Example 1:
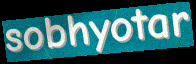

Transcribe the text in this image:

sobhyotar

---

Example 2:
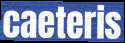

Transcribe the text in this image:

caeteris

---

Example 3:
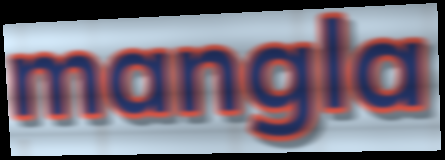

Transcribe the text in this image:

mangla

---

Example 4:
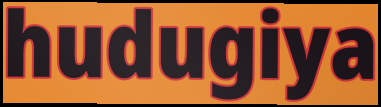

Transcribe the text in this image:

hudugiya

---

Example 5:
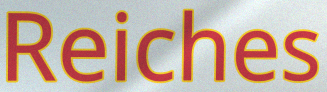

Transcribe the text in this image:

Reiches